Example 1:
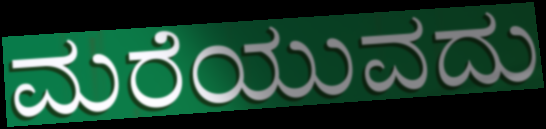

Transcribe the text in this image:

ಮರೆಯುವದು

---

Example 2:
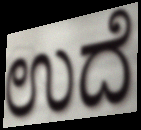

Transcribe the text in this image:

ಉದೆ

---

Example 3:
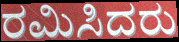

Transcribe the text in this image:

ರಮಿಸಿದರು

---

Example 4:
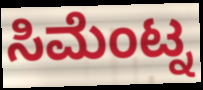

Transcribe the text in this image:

ಸಿಮೆಂಟ್ನ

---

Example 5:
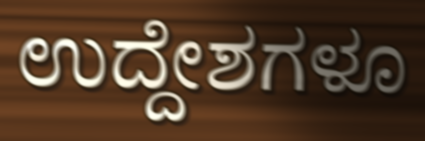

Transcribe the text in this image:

ಉದ್ದೇಶಗಳೂ